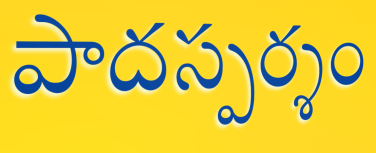
పాదస్పర్శం